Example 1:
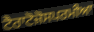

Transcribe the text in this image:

ਟੈਰਾਟੋਜ਼ੋਸਪਰਮੀਆ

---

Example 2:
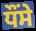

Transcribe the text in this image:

ਧੌਂਸੇ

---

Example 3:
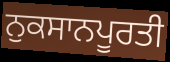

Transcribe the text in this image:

ਨੁਕਸਾਨਪੂਰਤੀ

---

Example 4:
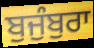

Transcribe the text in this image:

ਬੁਜੁੰਬੁਰਾ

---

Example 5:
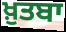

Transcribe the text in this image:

ਖ਼ੁਤਬਾ